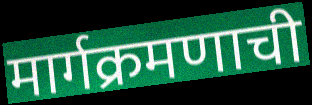
मार्गक्रमणाची